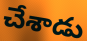
చేశాడు